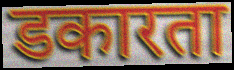
डकारता